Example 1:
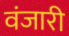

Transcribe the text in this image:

वंजारी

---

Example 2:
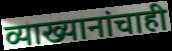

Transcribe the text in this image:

व्याख्यानांचाही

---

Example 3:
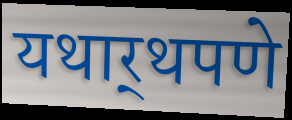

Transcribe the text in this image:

यथार्थपणे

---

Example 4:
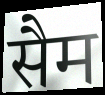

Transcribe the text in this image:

सैम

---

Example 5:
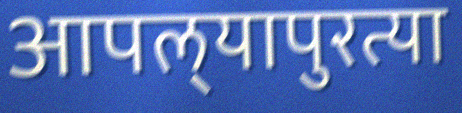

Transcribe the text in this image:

आपल्यापुरत्या